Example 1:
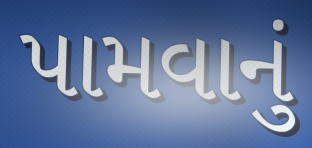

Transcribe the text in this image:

પામવાનું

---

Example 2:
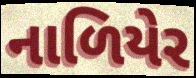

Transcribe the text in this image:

નાળિયેર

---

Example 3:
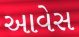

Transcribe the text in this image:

આવેસ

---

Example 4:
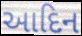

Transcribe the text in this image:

આદિન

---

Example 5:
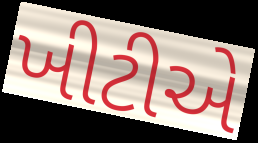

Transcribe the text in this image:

ખીટીએ